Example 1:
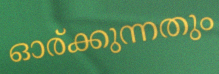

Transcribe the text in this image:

ഓര്ക്കുന്നതും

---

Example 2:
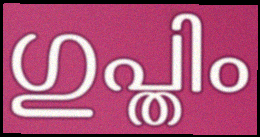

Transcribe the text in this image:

ഗുപ്തിം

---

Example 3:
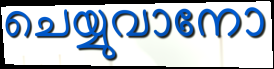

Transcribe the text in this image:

ചെയ്യുവാനോ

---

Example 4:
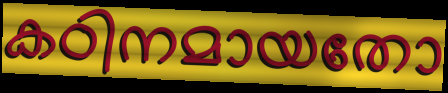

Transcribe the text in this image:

കഠിനമായതോ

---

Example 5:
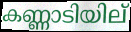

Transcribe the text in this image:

കണ്ണാടിയില്